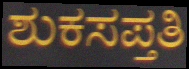
ಶುಕಸಪ್ತತಿ